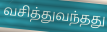
வசித்துவந்தது